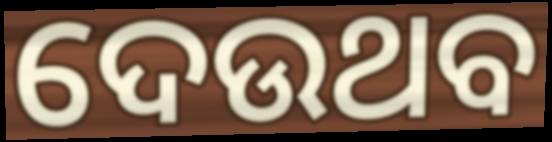
ଦେଉଥବ